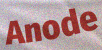
Anode